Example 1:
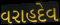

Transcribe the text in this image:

વરાહદેવ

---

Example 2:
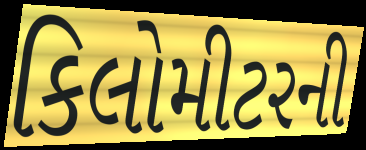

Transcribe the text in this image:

કિલોમીટરની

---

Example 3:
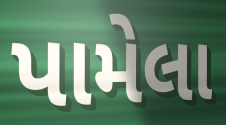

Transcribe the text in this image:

પામેલા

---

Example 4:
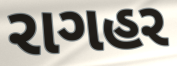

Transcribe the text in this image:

રાગહર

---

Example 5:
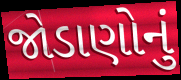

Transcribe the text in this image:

જોડાણોનું